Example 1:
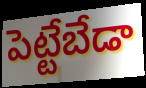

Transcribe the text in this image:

పెట్టేబేడా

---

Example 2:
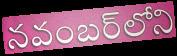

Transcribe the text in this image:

నవంబర్‌లోని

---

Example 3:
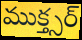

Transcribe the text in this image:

ముక్త్సర్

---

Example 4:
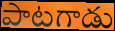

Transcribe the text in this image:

పాటగాడు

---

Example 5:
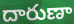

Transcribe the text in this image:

దారుణా